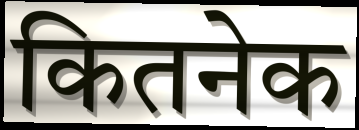
कितनेक